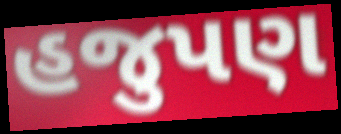
હજુપણ